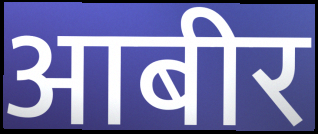
आबीर